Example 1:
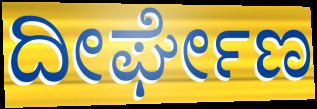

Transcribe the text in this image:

ದೀರ್ಘೇಣ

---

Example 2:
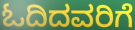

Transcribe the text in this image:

ಓದಿದವರಿಗೆ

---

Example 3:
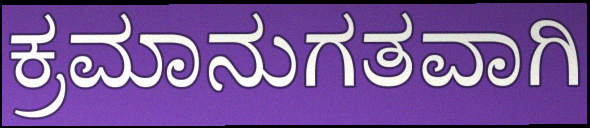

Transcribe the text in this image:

ಕ್ರಮಾನುಗತವಾಗಿ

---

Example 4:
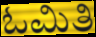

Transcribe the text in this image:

ಓಮಿತಿ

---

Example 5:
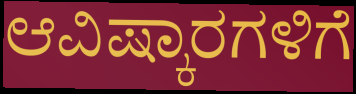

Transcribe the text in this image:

ಆವಿಷ್ಕಾರಗಳಿಗೆ